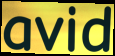
avid